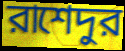
রাশেদুর